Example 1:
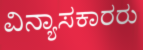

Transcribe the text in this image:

ವಿನ್ಯಾಸಕಾರರು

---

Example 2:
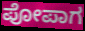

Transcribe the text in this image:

ಪೋಪಾಗ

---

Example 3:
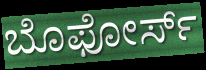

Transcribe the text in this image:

ಬೊಫೋರ್ಸ್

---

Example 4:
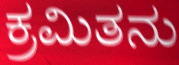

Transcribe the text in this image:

ಕ್ರಮಿತನು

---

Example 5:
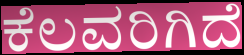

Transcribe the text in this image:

ಕೆಲವರಿಗಿದೆ